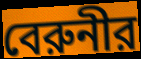
বেরুনীর